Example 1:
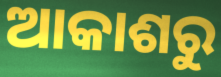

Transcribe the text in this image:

ଆକାଶରୁ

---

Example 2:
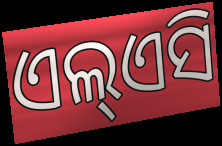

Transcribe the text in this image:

ଏଲ୍ଏସି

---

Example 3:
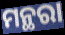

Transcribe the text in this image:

ମନ୍ଥରା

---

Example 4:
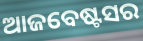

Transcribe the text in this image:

ଆଜବେଷ୍ଟସର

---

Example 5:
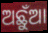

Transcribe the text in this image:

ଅଛୁଁଆ